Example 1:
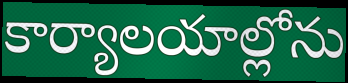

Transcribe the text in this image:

కార్యాలయాల్లోను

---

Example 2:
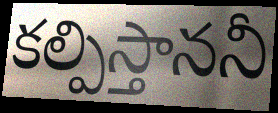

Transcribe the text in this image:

కల్పిస్తాననీ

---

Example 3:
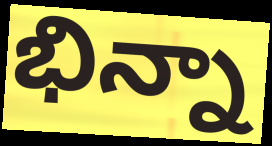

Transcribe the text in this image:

భిన్నా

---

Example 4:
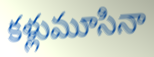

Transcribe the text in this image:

కళ్లుమూసినా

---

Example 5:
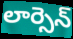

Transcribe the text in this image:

లార్సెన్